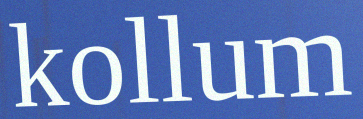
kollum